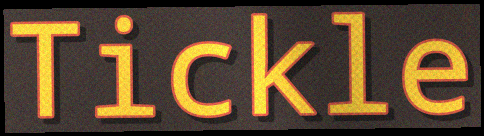
Tickle